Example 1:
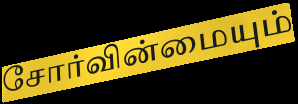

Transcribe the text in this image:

சோர்வின்மையும்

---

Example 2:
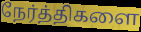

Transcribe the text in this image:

நேர்த்திகளை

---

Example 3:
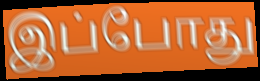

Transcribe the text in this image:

இப்போது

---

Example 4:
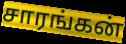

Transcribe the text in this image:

சாரங்கன்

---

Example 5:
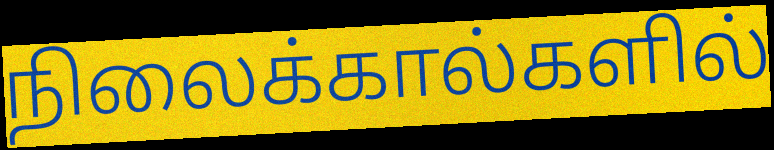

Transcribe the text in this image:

நிலைக்கால்களில்